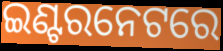
ଇଣ୍ଟରନେଟରେ